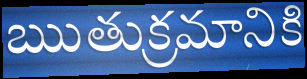
ఋతుక్రమానికి